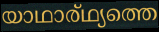
യാഥാര്ഥ്യത്തെ